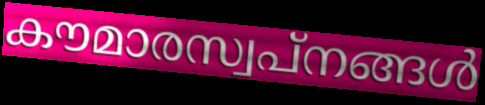
കൗമാരസ്വപ്നങ്ങൾ